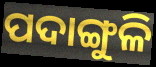
ପଦାଙ୍ଗୁଳି